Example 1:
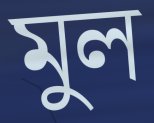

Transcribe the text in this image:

মুল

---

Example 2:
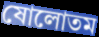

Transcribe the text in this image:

ষোলোতম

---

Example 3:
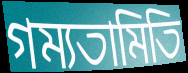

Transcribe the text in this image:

গম্যতামিতি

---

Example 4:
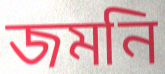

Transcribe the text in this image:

জমনি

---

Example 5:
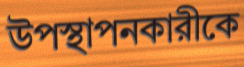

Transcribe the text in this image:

উপস্থাপনকারীকে